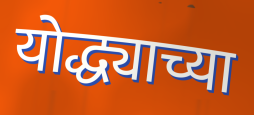
योद्ध्याच्या